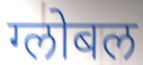
ग्लोबल